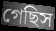
গেছিস